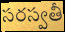
సరస్వతీ